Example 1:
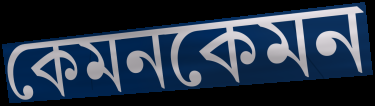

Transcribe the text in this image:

কেমনকেমন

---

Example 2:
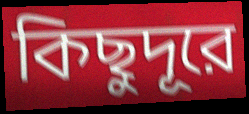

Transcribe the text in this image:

কিছুদূরে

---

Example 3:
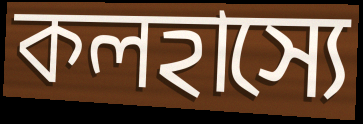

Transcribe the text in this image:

কলহাস্যে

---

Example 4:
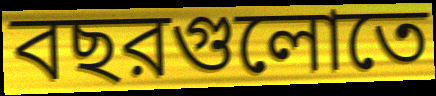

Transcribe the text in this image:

বছরগুলোতে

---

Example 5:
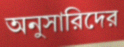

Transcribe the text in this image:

অনুসারিদের